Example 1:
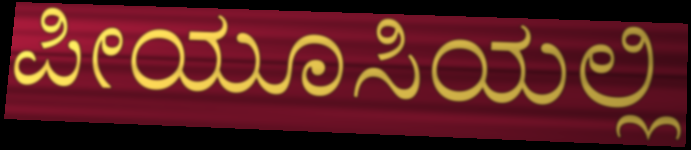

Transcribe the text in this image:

ಪೀಯೂಸಿಯಲ್ಲಿ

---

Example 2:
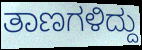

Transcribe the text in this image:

ತಾಣಗಳಿದ್ದು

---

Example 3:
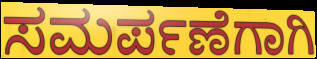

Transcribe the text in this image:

ಸಮರ್ಪಣೆಗಾಗಿ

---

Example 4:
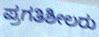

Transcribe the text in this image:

ಪ್ರಗತಿಶೀಲರು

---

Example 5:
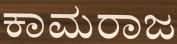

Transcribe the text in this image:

ಕಾಮರಾಜ